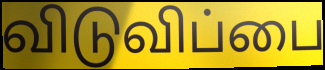
விடுவிப்பை